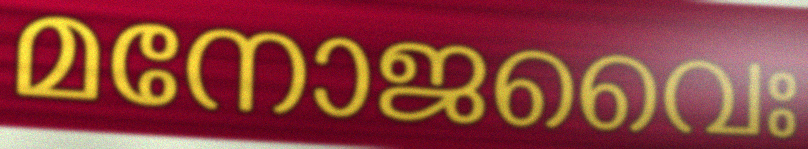
മനോജവൈഃ